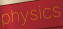
physics